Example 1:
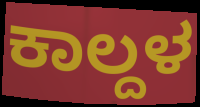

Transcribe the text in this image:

ಕಾಲ್ದಳ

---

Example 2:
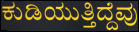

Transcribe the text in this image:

ಕುಡಿಯುತ್ತಿದ್ದೆವು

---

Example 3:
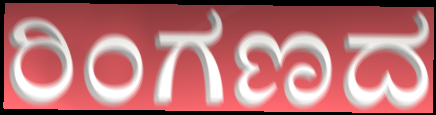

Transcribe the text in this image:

ರಿಂಗಣದ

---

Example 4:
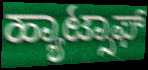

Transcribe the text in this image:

ಹ್ಯಾಟ್ಸಾಫ್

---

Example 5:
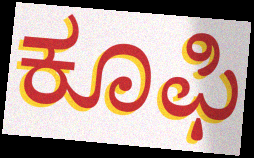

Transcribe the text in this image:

ಕೂಫಿ